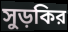
সুড়কির